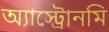
অ্যাস্ট্রোনমি